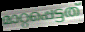
മാറ്റപ്പെട്ടത്